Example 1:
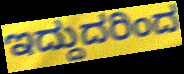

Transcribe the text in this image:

ಇದ್ದುದರಿಂದ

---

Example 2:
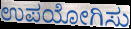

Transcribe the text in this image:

ಉಪಯೋಗಿಸು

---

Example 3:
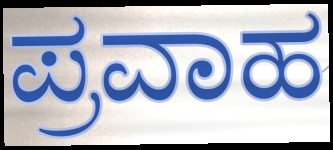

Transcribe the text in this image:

ಪ್ರವಾಹ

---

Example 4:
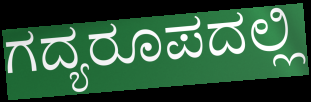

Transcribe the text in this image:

ಗದ್ಯರೂಪದಲ್ಲಿ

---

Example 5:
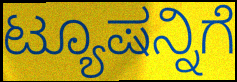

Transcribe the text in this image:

ಟ್ಯೂಷನ್ನಿಗೆ